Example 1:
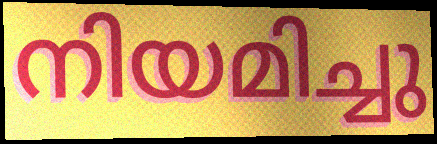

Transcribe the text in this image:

നിയമിച്ചു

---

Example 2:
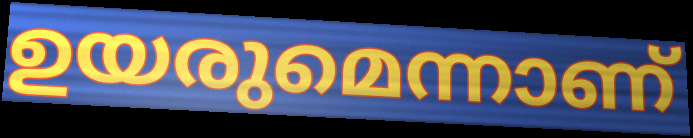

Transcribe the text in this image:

ഉയരുമെന്നാണ്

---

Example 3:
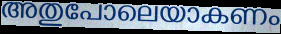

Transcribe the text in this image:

അതുപോലെയാകണം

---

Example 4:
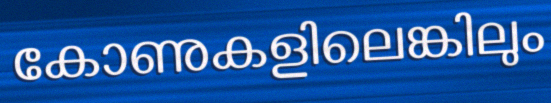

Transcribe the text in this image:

കോണുകളിലെങ്കിലും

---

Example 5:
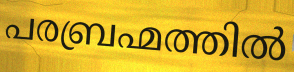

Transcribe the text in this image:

പരബ്രഹ്മത്തിൽ